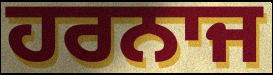
ਹਰਨਾਜ